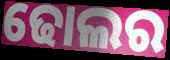
ଢୋଲର